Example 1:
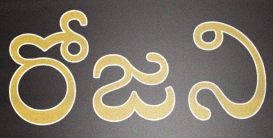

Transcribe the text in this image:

రోజని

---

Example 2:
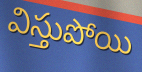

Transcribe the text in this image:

విస్తుపోయి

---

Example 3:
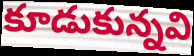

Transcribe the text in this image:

కూడుకున్నవి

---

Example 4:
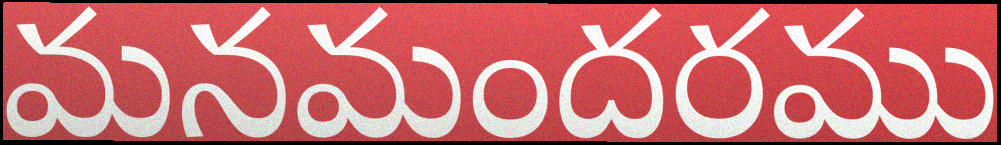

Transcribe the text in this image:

మనమందరము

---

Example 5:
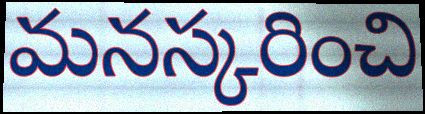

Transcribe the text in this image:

మనస్కరించి